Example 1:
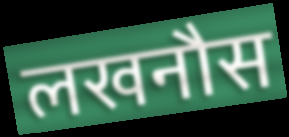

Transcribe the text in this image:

लखनौस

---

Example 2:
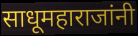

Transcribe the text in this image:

साधूमहाराजांनी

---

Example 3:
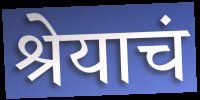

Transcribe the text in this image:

श्रेयाचं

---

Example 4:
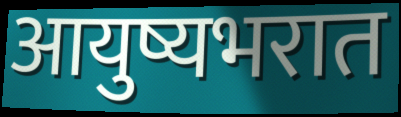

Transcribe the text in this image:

आयुष्यभरात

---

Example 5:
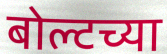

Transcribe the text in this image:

बोल्टच्या